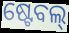
ଷ୍ଟେବଲ୍